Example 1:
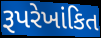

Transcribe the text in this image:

રૂપરેખાંકિત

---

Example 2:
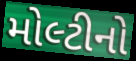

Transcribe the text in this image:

મોલ્ટીનો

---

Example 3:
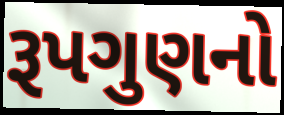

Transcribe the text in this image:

રૂપગુણનો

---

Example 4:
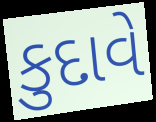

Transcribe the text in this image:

કુદાવે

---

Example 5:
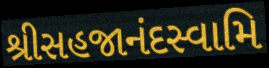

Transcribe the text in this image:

શ્રીસહજાનંદસ્વામિ